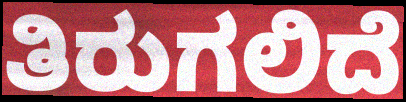
ತಿರುಗಲಿದೆ